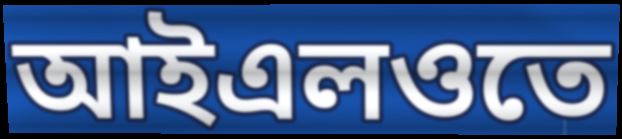
আইএলওতে